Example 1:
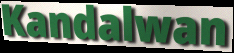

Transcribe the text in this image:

Kandalwan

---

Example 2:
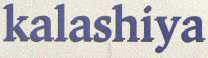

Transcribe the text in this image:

kalashiya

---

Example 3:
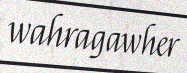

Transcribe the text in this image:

wahragawher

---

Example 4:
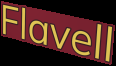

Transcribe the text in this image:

Flavell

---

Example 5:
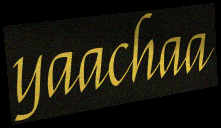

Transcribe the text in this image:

yaachaa